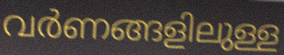
വർണങ്ങളിലുള്ള